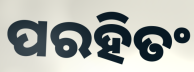
ପରହିତଂ